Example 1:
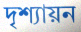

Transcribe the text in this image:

দৃশ্যায়ন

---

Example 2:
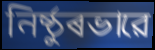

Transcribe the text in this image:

নিষ্ঠুৰভাৱে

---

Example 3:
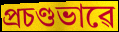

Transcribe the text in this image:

প্ৰচণ্ডভাৱে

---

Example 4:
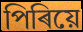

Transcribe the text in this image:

পিৰিয়ে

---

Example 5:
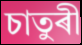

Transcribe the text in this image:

চাতুৰী